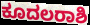
ಕೂದಲರಾಶಿ